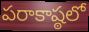
పరాకాష్ఠలో